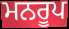
ਮਨਰੂਪ